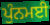
ਪੁੰਨਮਈ